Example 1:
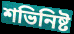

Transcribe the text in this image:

শভিনিষ্ট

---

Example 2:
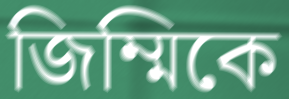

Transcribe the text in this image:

জিম্মিকে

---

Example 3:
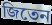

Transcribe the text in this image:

জিতেন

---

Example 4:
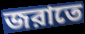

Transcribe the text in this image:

জরাতে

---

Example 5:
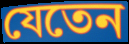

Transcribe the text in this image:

যেতেন